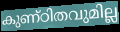
കുണ്ഠിതവുമില്ല